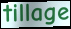
tillage